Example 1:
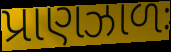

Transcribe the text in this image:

પ્રાણઝાળઃ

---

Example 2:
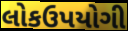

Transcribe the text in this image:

લોકઉપયોગી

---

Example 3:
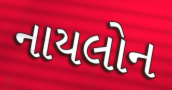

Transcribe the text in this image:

નાયલોન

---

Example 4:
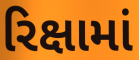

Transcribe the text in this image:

રિક્ષામાં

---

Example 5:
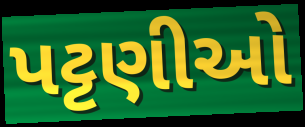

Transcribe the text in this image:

પટ્ટણીઓ